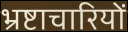
भ्रष्टाचारियों